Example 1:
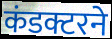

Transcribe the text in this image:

कंडक्टरने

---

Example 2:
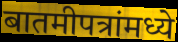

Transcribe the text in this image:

बातमीपत्रांमध्ये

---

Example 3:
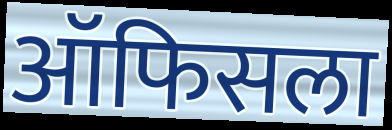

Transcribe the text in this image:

ऑफिसला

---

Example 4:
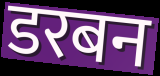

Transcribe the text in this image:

डरबन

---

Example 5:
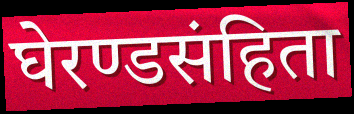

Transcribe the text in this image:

घेरण्डसंहिता